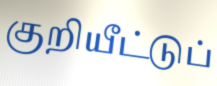
குறியீட்டுப்